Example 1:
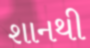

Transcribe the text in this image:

શાનથી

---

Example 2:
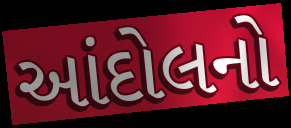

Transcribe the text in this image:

આંદોલનો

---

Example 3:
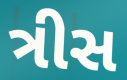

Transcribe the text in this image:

ત્રીસ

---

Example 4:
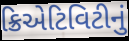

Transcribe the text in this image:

ક્રિએટિવિટીનું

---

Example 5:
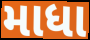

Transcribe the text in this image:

માધા